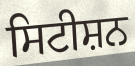
ਸਿਟੀਸ਼ਨ